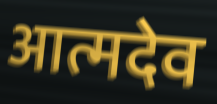
आत्मदेव